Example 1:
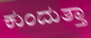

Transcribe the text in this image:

ಕುಂದುತ್ತಾ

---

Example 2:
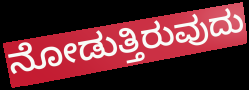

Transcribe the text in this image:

ನೋಡುತ್ತಿರುವುದು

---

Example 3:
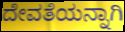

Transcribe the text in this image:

ದೇವತೆಯನ್ನಾಗಿ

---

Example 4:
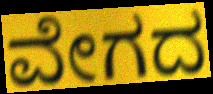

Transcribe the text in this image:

ವೇಗದ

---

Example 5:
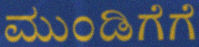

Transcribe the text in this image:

ಮುಂಡಿಗೆಗೆ